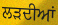
ਲੜਦੀਆਂ